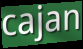
cajan